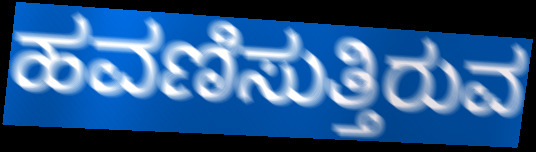
ಹವಣಿಸುತ್ತಿರುವ